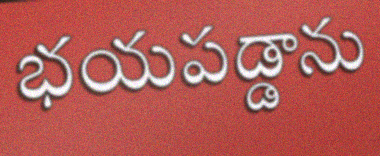
భయపడ్డాను